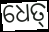
ଧେତ୍